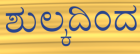
ಶುಲ್ಕದಿಂದ